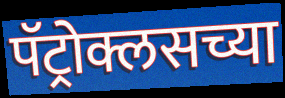
पॅट्रोक्लसच्या